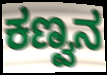
ಕಣ್ವನ